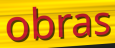
obras